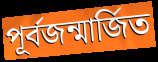
পূৰ্বজন্মাৰ্জিত